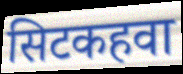
सिटकहवा